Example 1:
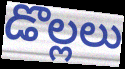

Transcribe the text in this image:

డొల్లలు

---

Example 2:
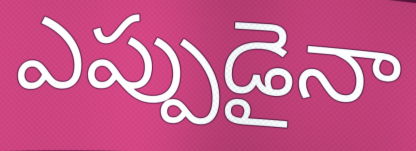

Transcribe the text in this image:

ఎప్పుడైనా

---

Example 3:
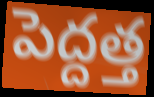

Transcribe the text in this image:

పెద్దత్త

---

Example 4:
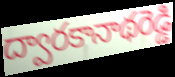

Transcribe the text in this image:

ద్వారకానాథరెడ్డి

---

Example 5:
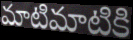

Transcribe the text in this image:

మాటిమాటికి